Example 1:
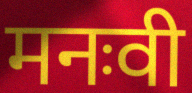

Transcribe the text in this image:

मनःवी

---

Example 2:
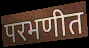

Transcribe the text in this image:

परभणीत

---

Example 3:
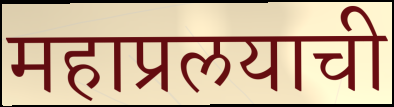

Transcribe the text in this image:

महाप्रलयाची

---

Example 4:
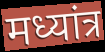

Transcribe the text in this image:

मध्यांत्र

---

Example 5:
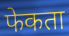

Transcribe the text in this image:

फेकता